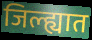
जिल्ह्यात